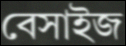
বেসাইজ